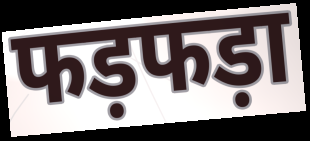
फड़फड़ा